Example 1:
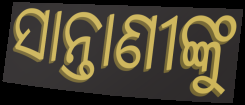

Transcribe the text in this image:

ସାନ୍ତାଣୀଙ୍କୁ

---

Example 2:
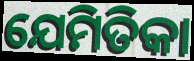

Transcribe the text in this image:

ଯେମିତିକା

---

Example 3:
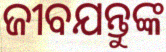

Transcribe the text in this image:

ଜୀବଯନ୍ତୁଙ୍କ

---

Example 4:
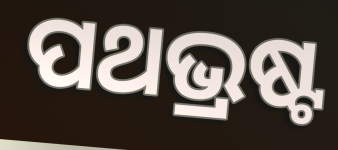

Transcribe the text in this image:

ପଥଭ୍ରଷ୍ଟ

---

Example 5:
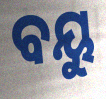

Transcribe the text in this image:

ବୟୁ